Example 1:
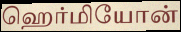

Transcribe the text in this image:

ஹெர்மியோன்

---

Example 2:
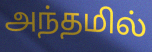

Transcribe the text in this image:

அந்தமில்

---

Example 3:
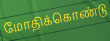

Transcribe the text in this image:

மோதிக்கொண்டு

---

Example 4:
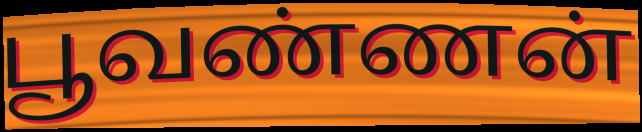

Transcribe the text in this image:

பூவண்ணன்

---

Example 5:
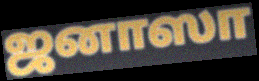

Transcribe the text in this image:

ஜனாஸா